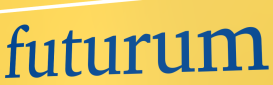
futurum